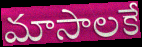
మాసాలకే